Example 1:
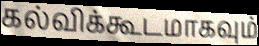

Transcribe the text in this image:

கல்விக்கூடமாகவும்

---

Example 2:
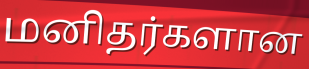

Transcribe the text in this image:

மனிதர்களான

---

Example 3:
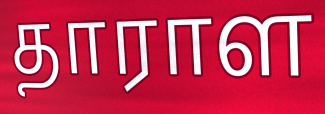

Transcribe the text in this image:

தாராள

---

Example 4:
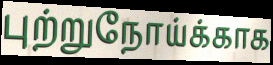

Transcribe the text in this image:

புற்றுநோய்க்காக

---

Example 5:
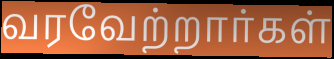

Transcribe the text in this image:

வரவேற்றார்கள்